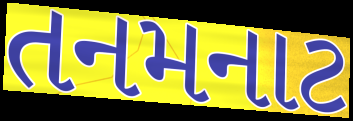
તનમનાટ